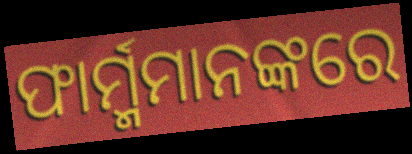
ଫାର୍ମ୍ମମାନଙ୍କରେ